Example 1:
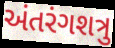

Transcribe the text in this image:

અંતરંગશત્રુ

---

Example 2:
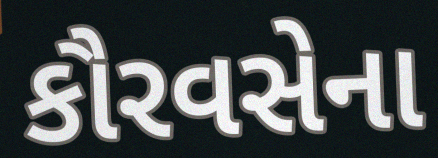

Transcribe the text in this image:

કૌરવસેના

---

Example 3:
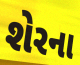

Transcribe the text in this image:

શેરના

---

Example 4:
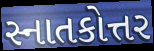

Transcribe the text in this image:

સ્નાતકોત્તર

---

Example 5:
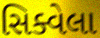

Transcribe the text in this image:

સિક્વેલા